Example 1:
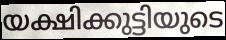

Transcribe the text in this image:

യക്ഷിക്കുട്ടിയുടെ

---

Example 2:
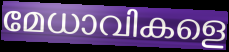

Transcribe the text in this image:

മേധാവികളെ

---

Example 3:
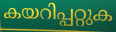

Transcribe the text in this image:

കയറിപ്പറ്റുക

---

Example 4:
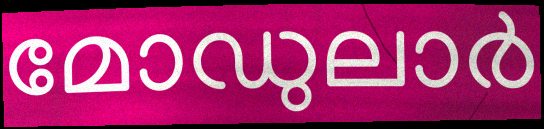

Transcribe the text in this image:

മോഡുലാർ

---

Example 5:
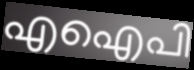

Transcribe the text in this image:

എഐപി